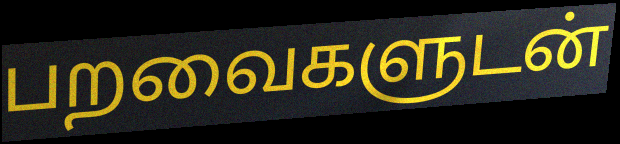
பறவைகளுடன்